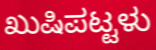
ಖುಷಿಪಟ್ಟಳು